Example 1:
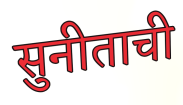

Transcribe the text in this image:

सुनीताची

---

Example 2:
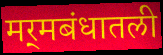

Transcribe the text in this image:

मर्मबंधातली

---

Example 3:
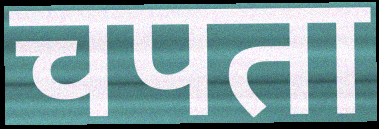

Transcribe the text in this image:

चपता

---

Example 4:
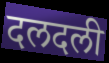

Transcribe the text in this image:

दलदली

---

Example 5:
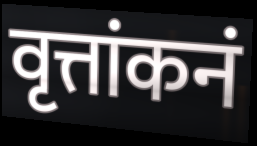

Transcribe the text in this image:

वृत्तांकनं